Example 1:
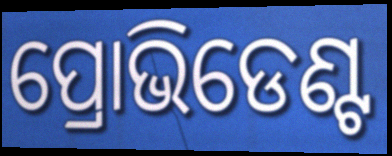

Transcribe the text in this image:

ପ୍ରୋଭିଡେଣ୍ଟ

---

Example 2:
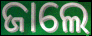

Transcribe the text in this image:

ଜାଲେ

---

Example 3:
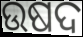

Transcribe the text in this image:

ଉଷଦ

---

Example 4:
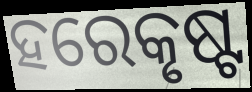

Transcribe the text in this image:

ହରେକୃଷ୍ଟ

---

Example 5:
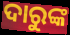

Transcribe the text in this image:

ଦାରୁଙ୍କ